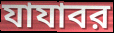
যাযাবর